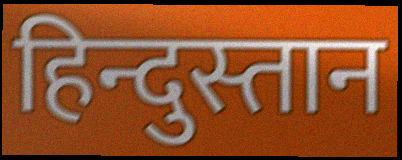
हिन्‍दुस्‍तान